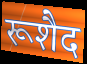
रूशैद